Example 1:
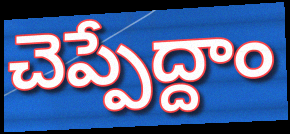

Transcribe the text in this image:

చెప్పేద్దాం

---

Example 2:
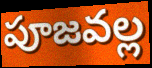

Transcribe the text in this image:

పూజవల్ల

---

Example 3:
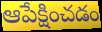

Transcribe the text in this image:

ఆపేక్షించడం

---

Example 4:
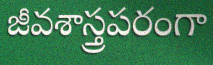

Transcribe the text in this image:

జీవశాస్త్రపరంగా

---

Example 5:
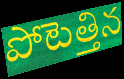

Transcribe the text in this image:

పోటెత్తిన